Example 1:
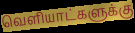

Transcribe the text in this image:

வெளியாட்களுக்கு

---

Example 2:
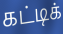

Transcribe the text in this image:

கட்டிக்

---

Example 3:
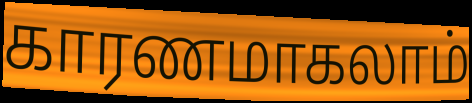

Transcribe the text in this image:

காரணமாகலாம்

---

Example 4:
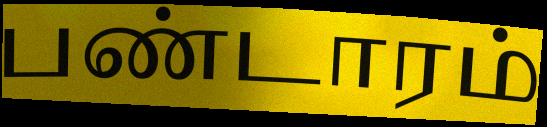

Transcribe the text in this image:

பண்டாரம்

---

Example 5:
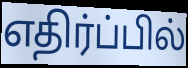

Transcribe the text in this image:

எதிர்ப்பில்